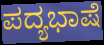
ಪದ್ಯಭಾಷೆ